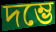
দম্ভে